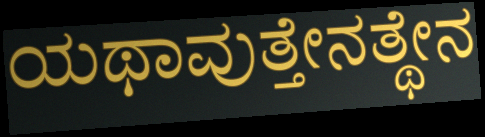
ಯಥಾವುತ್ತೇನತ್ಥೇನ